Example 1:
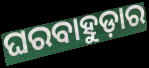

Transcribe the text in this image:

ଘରବାହୁଡ଼ାର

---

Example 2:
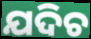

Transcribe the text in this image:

ଯଦିଚ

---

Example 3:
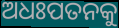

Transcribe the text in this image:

ଅଧଃପତନକୁ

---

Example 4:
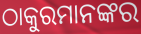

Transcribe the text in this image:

ଠାକୁରମାନଙ୍କର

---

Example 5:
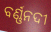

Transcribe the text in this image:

ବର୍ଣ୍ଣନଦୀ